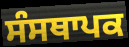
ਸੰਸਥਾਪਕ